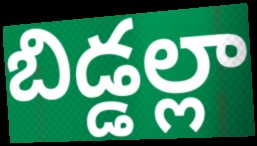
బిడ్డల్లా